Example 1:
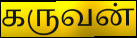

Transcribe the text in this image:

கருவன்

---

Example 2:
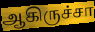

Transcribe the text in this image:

ஆகிருச்சா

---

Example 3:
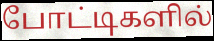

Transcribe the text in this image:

போட்டிகளில்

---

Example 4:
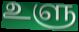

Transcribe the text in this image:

உளு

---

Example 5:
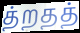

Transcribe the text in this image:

த்றதத்